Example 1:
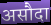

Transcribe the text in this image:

असौदा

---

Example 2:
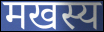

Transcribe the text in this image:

मखस्य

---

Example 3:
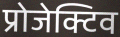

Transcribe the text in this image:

प्रोजेक्टिव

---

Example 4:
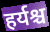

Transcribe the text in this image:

हर्यश्च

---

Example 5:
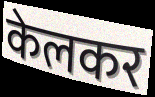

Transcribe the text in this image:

केलकर